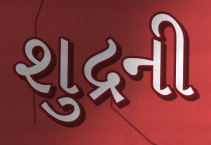
શુદ્રની